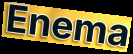
Enema